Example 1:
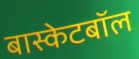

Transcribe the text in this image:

बास्‍केटबॉल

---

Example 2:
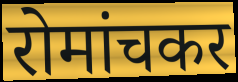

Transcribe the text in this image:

रोमांचकर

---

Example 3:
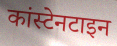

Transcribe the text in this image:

कांस्टेनटाइन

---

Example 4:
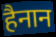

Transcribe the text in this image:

हैनान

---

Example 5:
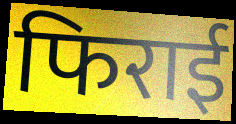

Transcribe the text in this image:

फिराई